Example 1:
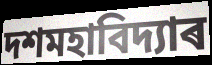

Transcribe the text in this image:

দশমহাবিদ্যাৰ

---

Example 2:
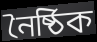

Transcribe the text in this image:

নৈষ্ঠিক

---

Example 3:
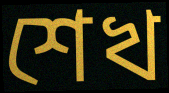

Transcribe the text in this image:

শেখ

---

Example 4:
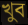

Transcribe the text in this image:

খুব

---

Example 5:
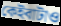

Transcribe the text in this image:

কেইবাটাও